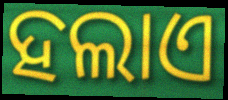
ହଲାଏ